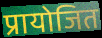
प्रायोजित